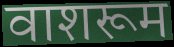
वाशरूम